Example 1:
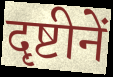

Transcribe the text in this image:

दृष्टीनें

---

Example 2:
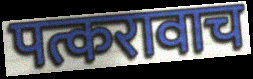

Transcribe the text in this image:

पत्करावाच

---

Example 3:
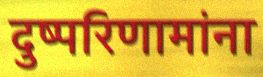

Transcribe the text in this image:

दुष्परिणामांना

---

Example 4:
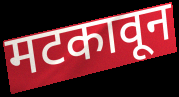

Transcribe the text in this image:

मटकावून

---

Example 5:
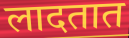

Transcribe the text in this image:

लादतात